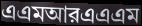
এএমআরএএএম